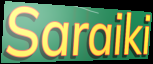
Saraiki